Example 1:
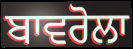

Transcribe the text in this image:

ਬਾਵਰੋਲਾ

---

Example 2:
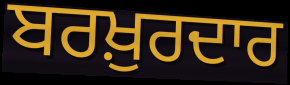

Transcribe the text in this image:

ਬਰਖ਼ੁਰਦਾਰ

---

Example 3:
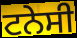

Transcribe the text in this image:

ਟਨੇਸੀ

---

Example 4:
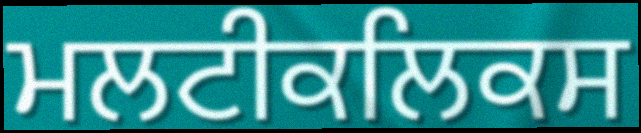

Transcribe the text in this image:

ਮਲਟੀਕਲਿਕਸ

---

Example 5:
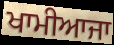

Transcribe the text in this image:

ਖਾਮੀਆਜਾ